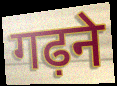
गढ़ने